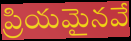
ప్రియమైనవే